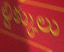
ల్దిక్కులు